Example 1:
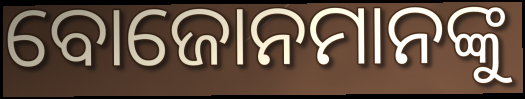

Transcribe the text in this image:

ବୋଜୋନମାନଙ୍କୁ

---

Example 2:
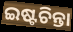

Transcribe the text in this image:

ଇଷ୍ଟଚିନ୍ତା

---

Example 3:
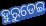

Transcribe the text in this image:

ହୁରୁଡେଇ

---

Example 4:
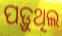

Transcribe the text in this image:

ପଡ଼ୁଥିଲ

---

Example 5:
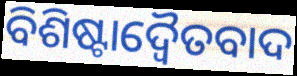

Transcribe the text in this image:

ବିଶିଷ୍ଟାଦ୍ଵୈତବାଦ